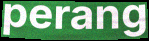
perang